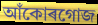
আঁকোৰগোজ